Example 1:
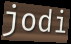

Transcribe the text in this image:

jodi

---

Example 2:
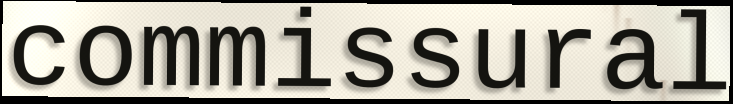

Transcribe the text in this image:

commissural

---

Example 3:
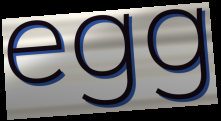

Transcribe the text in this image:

egg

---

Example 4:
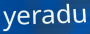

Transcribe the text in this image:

yeradu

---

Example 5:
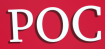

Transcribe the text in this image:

POC